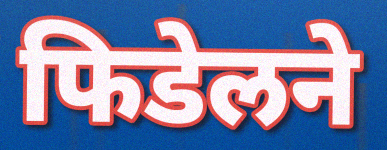
फिडेलने